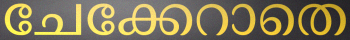
ചേക്കേറാതെ